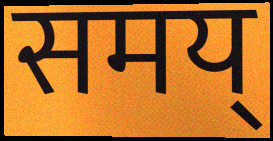
समय्